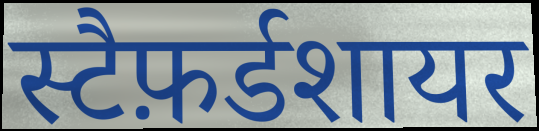
स्टैफ़र्डशायर